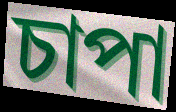
চাপা